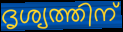
ദൃശ്യത്തിന്